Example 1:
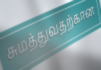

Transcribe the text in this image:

சுமத்துவதற்கான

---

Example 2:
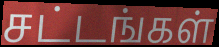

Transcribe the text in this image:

சட்டங்கள்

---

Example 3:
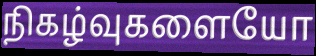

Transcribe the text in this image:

நிகழ்வுகளையோ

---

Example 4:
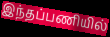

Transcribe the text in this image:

இந்தப்பணியில்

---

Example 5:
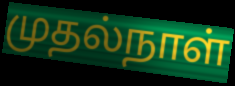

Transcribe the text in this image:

முதல்நாள்